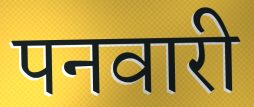
पनवारी